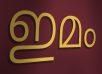
ഇമം